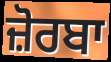
ਜ਼ੋਰਬਾ